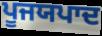
ਪੂਜਯਪਾਦ